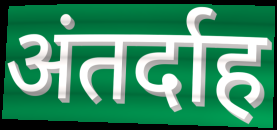
अंतर्दाह